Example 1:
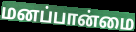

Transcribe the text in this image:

மனப்பான்மை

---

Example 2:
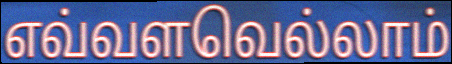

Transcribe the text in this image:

எவ்வளவெல்லாம்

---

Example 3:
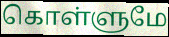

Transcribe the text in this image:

கொள்ளுமே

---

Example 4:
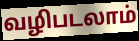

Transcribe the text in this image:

வழிபடலாம்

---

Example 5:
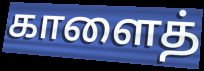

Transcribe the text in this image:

காளைத்